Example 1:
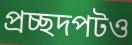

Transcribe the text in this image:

প্রচ্ছদপটও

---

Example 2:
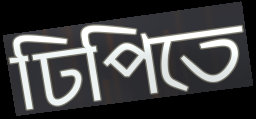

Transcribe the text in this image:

ঢিপিতে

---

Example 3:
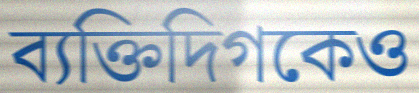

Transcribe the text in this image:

ব্যক্তিদিগকেও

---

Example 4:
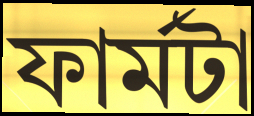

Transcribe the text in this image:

ফার্মটা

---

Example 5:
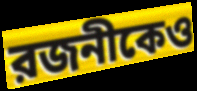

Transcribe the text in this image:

রজনীকেও